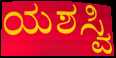
ಯಶಸ್ವಿ